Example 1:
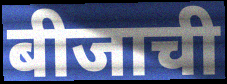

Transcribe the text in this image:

बीजाची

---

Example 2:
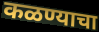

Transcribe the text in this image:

कळण्याचा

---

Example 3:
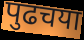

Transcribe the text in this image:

पुढचया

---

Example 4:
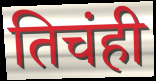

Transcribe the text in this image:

तिचंही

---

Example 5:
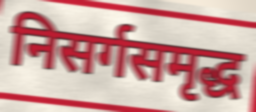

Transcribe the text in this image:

निसर्गसमृद्ध